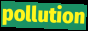
pollution